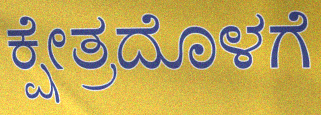
ಕ್ಷೇತ್ರದೊಳಗೆ